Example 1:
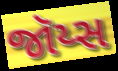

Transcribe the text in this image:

જૉય્સ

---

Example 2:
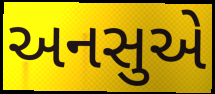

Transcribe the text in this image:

અનસુએ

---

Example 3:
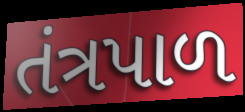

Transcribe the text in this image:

તંત્રપાળ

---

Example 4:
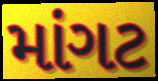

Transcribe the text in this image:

માંગટ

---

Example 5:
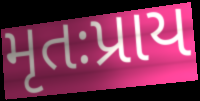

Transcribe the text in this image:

મૃતઃપ્રાય